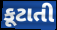
કૂટાતી